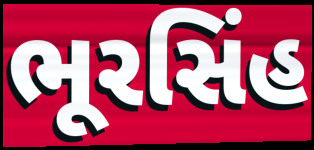
ભૂરસિંહ